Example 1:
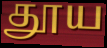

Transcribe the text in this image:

தூய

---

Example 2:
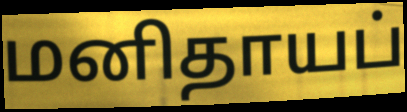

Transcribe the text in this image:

மனிதாயப்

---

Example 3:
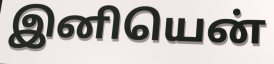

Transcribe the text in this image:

இனியென்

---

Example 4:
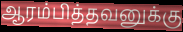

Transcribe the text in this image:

ஆரம்பித்தவனுக்கு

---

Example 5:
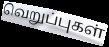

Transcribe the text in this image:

வெறுப்புகள்